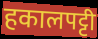
हकालपट्टी